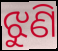
ଝୁଣି